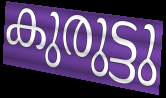
കുരുട്ടു